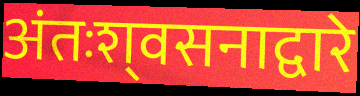
अंतःश्वसनाद्वारे